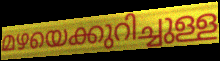
മഴയെക്കുറിച്ചുള്ള